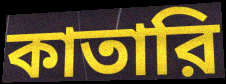
কাতারি